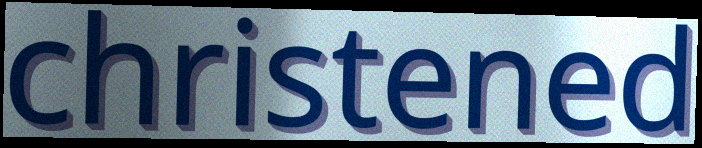
christened